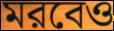
মরবেও